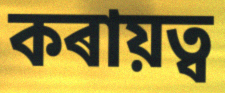
কৰায়ত্ব